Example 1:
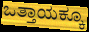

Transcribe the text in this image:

ಒತ್ತಾಯಕ್ಕೂ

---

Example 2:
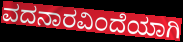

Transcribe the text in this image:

ವದನಾರವಿಂದೆಯಾಗಿ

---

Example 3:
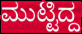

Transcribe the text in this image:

ಮುಟ್ಟಿದ್ದ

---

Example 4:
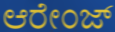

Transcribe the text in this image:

ಆರೇಂಜ್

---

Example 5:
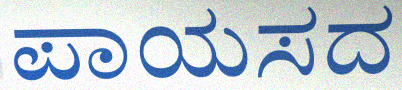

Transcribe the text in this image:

ಪಾಯಸದ